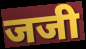
जजी